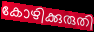
കോഴിക്കുരുതി